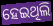
ହେଇଥିଲି